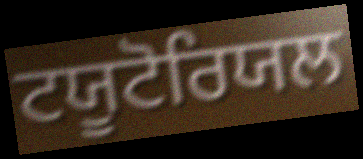
ਟਯੂਟੋਰਿਯਲ